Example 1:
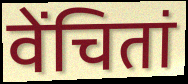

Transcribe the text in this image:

वेंचितां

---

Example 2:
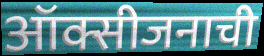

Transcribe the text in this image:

ऑक्सीजनाची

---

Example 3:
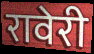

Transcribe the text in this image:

रावेरी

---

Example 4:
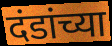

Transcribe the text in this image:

दंडांच्या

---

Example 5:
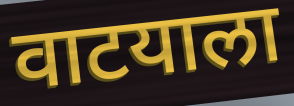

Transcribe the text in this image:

वाटयाला